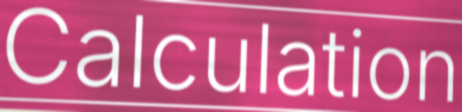
Calculation